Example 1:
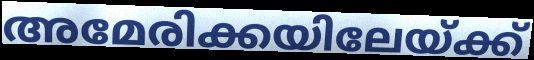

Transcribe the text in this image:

അമേരിക്കയിലേയ്ക്ക്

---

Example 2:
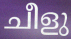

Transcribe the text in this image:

ചീളു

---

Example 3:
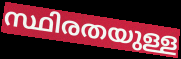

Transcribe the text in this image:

സ്ഥിരതയുള്ള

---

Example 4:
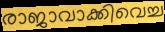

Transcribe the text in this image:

രാജാവാക്കിവെച്ച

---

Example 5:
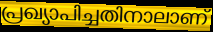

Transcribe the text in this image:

പ്രഖ്യാപിച്ചതിനാലാണ്